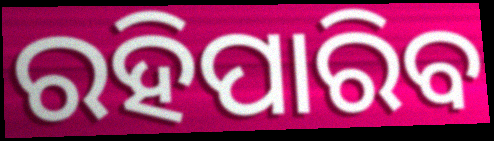
ରହିପାରିବ